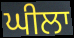
ਘੀਲਾ